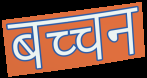
बच्चन